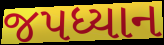
જપધ્યાન